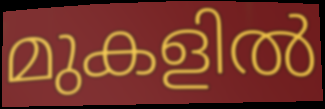
മുകളിൽ